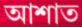
আশাত